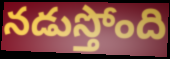
నడుస్తోంది